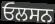
ਓਲਸਨ